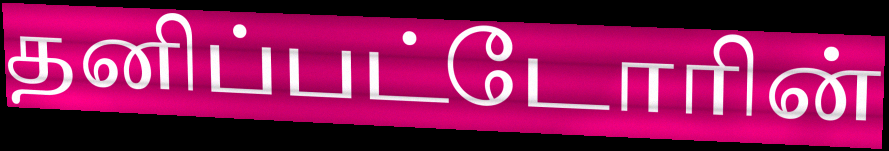
தனிப்பட்டோரின்